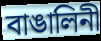
বাঙালিনী